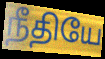
நீதியே